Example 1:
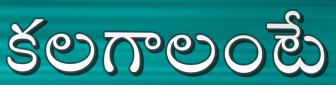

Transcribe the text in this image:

కలగాలంటే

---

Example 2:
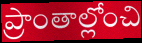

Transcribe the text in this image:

ప్రాంతాల్లోంచి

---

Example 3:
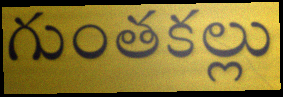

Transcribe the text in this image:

గుంతకల్లు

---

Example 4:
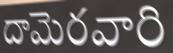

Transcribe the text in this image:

దామెరవారి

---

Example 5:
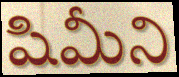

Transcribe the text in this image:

షిమీని